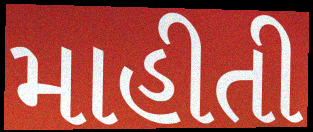
માહીતી